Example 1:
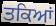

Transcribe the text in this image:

ਤਕਿਆਂ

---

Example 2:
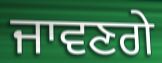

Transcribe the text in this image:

ਜਾਵਣਗੇ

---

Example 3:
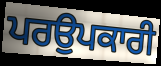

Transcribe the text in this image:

ਪਰਉਪਕਾਰੀ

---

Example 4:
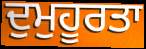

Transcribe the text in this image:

ਦੁਮੁਹੂਰਤਾ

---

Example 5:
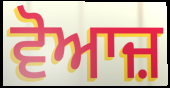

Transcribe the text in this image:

ਵੋਆਜ਼